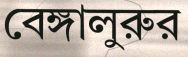
বেঙ্গালুরুর